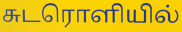
சுடரொளியில்